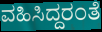
ವಹಿಸಿದ್ದರಂತೆ